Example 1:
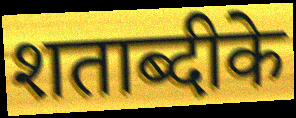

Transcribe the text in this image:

शताब्दीके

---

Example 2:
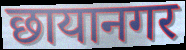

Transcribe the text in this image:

छायानगर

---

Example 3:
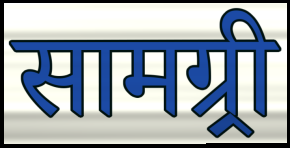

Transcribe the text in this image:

सामग्र्री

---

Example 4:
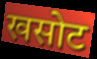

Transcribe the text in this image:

खसोट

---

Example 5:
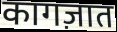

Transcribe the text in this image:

कागज़ात